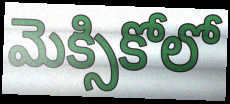
మెక్సికోలో